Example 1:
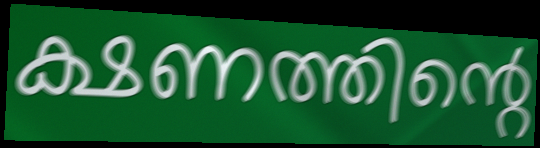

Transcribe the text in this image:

ക്ഷണത്തിന്റെ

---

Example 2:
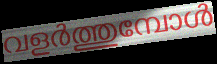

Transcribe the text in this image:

വളർത്തുമ്പോൾ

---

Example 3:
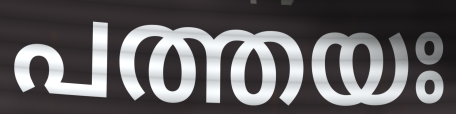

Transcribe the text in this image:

പത്തയഃ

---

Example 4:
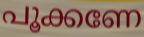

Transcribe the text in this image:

പൂക്കണേ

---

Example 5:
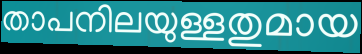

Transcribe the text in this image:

താപനിലയുള്ളതുമായ